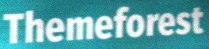
Themeforest